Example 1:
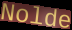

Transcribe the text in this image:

Nolde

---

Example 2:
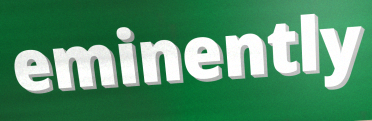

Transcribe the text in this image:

eminently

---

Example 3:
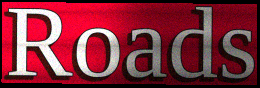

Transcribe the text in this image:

Roads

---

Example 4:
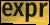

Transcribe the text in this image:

expr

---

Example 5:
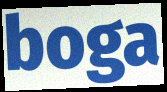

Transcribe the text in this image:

boga